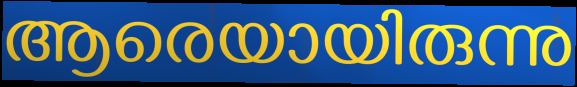
ആരെയായിരുന്നു